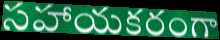
సహాయకరంగా